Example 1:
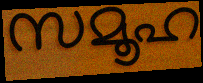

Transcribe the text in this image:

സമൂഹ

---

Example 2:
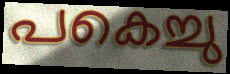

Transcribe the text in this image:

പകെച്ചു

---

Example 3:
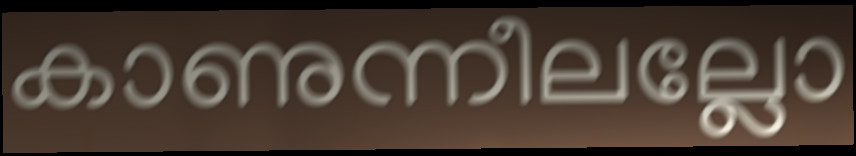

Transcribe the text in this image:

കാണുന്നീലല്ലോ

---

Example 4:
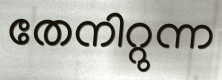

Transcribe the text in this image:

തേനിറ്റുന്ന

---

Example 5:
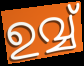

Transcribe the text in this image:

ഉവ്വ്